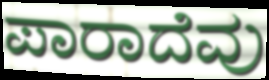
ಪಾರಾದೆವು